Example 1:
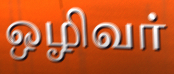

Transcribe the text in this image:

ஒழிவர்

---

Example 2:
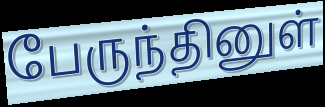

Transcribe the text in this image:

பேருந்தினுள்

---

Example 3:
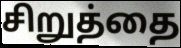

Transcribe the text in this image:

சிறுத்தை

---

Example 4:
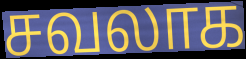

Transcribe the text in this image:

சவலாக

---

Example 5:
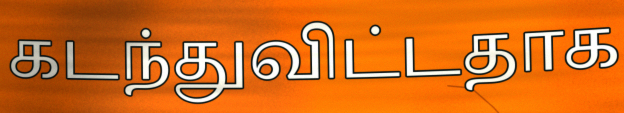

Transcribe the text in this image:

கடந்துவிட்டதாக